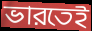
ভারতেই